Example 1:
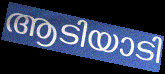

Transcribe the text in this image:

ആടിയാടി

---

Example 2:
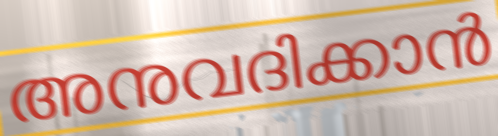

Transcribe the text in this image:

അനുവദിക്കാൻ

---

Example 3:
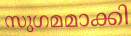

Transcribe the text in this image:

സുഗമമാക്കി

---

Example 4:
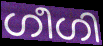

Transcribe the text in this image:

ഗീഗി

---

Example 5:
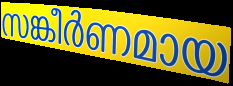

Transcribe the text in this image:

സങ്കീർണമായ